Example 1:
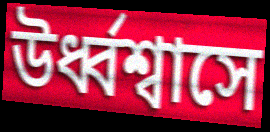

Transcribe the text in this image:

উর্ধ্বশ্বাসে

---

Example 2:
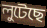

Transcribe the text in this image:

লুটেছে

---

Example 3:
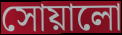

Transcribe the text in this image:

সোয়ালো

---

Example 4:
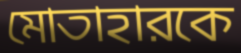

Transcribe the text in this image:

মোতাহারকে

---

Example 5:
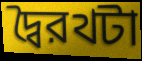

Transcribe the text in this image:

দ্বৈরথটা